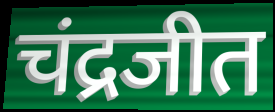
चंद्रजीत